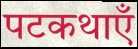
पटकथाएँ